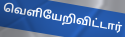
வெளியேறிவிட்டார்